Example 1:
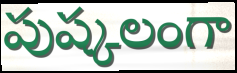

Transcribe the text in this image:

పుష్కలంగా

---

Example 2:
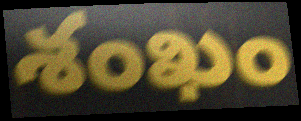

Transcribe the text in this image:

శంఖం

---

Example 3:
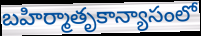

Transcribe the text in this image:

బహిర్మాతృకాన్యాసంలో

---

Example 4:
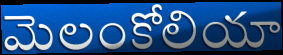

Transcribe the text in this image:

మెలంకోలియా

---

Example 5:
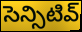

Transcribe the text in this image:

సెన్సిటివ్